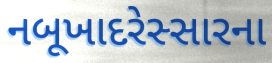
નબૂખાદરેસ્સારના